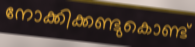
നോക്കിക്കണ്ടുകൊണ്ട്